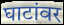
घाटांवर